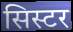
सिस्टर